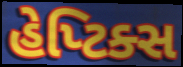
હેપ્ટિક્સ